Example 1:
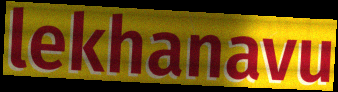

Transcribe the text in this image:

lekhanavu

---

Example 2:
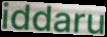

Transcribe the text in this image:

iddaru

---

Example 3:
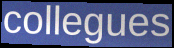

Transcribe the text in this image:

collegues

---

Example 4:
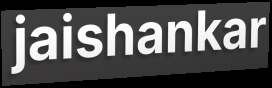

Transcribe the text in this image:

jaishankar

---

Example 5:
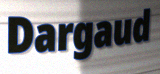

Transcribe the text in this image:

Dargaud